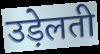
उड़ेलती